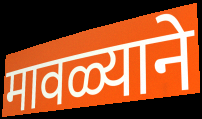
मावळ्याने